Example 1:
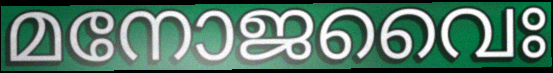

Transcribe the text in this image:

മനോജവൈഃ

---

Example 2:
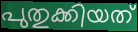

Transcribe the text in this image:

പുതുക്കിയത്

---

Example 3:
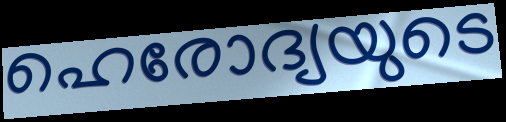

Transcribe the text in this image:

ഹെരോദ്യയുടെ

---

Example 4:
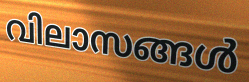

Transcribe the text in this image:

വിലാസങ്ങൾ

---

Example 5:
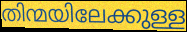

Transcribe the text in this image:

തിന്മയിലേക്കുള്ള